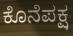
ಕೊನೆಪಕ್ಷ